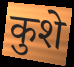
कुशे